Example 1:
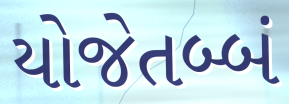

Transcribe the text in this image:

યોજેતબ્બં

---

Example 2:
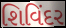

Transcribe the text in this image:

શિવિંદર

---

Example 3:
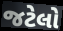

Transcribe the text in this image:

જટેલો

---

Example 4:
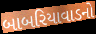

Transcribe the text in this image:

બાબરિયાવાડનો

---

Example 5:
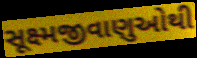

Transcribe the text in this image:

સૂક્ષ્મજીવાણુઓથી